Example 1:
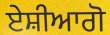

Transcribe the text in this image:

ਏਸ਼ੀਆਗੋ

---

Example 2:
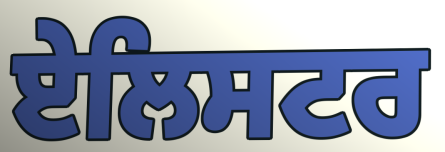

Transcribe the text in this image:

ਏਲਿਸਟਰ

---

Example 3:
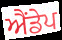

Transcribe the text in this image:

ਐਂਡੇਪ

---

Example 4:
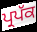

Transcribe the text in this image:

ਪ੍ਰਪੱਕ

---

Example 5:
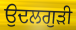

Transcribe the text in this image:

ਉਦਲਗੁੜੀ